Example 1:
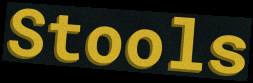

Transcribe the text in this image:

Stools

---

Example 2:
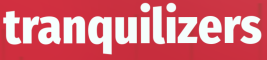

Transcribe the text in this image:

tranquilizers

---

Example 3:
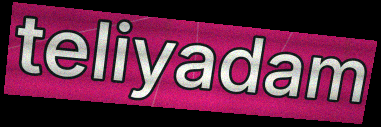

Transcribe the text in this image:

teliyadam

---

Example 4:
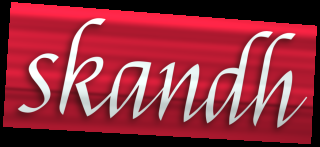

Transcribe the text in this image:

skandh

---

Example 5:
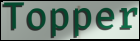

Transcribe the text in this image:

Topper